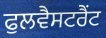
ਫੁਲਵੈਸਟਰੈਂਟ